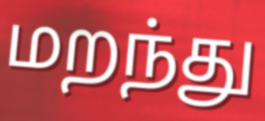
மறந்து